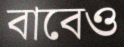
বাবেও